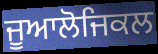
ਜੂਆਲੋਜਿਕਲ